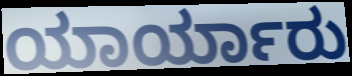
ಯಾರ್ಯಾರು